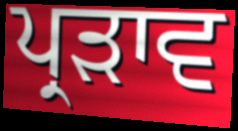
ਪ੍ਰੜਾਵ